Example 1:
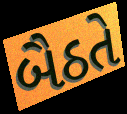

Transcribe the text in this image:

બૈઠતે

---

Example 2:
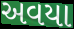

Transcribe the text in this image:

અવયા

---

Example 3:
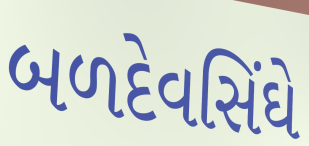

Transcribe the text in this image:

બળદેવસિંઘે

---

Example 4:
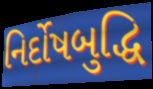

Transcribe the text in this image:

નિર્દોષબુદ્ધિ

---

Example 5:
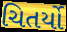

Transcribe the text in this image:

ચિતર્યો